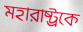
মহারাষ্ট্রকে